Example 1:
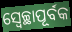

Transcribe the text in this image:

ସ୍ଵେଚ୍ଛାପୂର୍ବକ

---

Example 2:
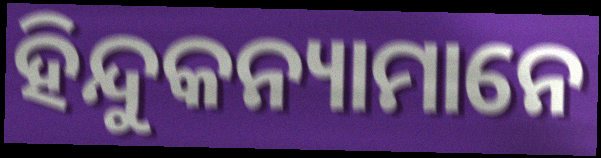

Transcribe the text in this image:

ହିନ୍ଦୁକନ୍ୟାମାନେ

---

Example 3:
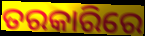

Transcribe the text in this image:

ତରକାରିରେ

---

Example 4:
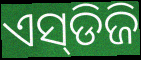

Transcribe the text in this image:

ଏସ୍‌ଡିଜି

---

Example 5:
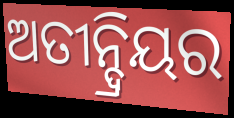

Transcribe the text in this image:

ଅତୀନ୍ଦ୍ରିୟର